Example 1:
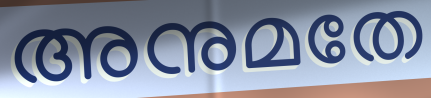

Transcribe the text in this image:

അനുമതേ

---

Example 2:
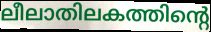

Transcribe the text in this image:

ലീലാതിലകത്തിന്റെ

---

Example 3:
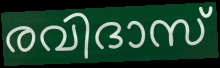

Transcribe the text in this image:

രവിദാസ്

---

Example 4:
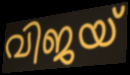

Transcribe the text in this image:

വിജയ്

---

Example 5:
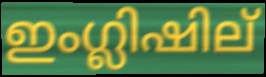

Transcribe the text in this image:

ഇംഗ്ലിഷില്